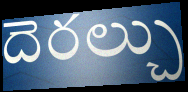
దెరల్చు